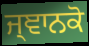
ਜ੍ਞਾਨਕੋ